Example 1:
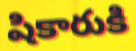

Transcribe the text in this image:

షికారుకి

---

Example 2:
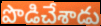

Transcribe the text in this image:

పొడిచేశాడు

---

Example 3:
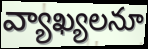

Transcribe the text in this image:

వ్యాఖ్యలనూ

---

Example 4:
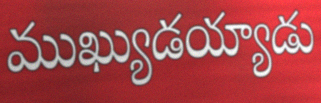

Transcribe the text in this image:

ముఖ్యుడయ్యాడు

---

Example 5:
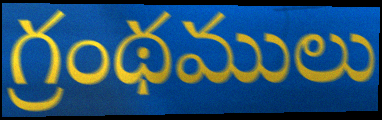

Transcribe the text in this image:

గ్రంథములు